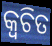
କ୍ବଚିତ